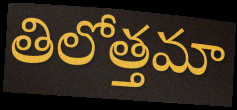
తిలోత్తమా